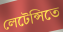
লেটেন্সিতে